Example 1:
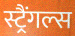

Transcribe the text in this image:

स्ट्रैंगल्स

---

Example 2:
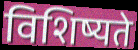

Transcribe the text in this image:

विशिष्यते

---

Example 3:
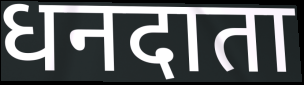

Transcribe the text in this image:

धनदाता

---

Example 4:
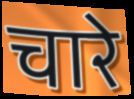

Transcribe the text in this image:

चारे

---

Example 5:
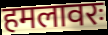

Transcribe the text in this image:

हमलावरः